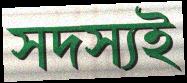
সদস্যই